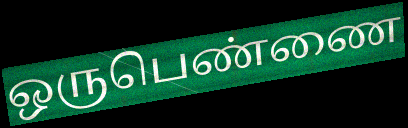
ஒருபெண்ணை